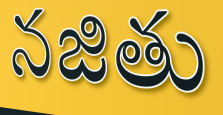
నజితు